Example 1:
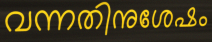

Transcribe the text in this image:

വന്നതിനുശേഷം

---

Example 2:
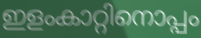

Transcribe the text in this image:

ഇളംകാറ്റിനൊപ്പം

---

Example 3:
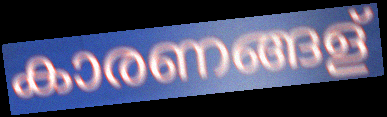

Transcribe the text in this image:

കാരണങ്ങള്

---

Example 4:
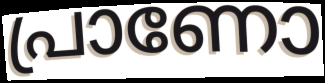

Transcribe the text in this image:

പ്രാണോ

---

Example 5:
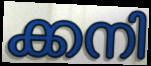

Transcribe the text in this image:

ക്കനി